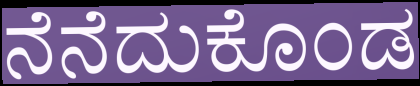
ನೆನೆದುಕೊಂಡ